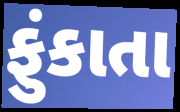
ફુંકાતા